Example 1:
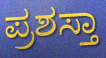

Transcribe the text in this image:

ಪ್ರಶಸ್ತಾ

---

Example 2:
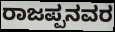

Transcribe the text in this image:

ರಾಜಪ್ಪನವರ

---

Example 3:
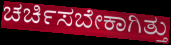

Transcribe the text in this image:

ಚರ್ಚಿಸಬೇಕಾಗಿತ್ತು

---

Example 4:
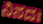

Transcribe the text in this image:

ನಿನದಃ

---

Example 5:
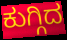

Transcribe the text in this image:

ಕುಗ್ಗಿದ